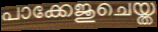
പാക്കേജുചെയ്ത